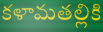
కళామతల్లికి